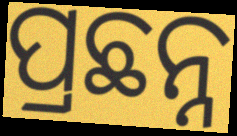
ପ୍ରଛନ୍ନ